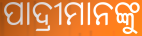
ପାଦ୍ରୀମାନଙ୍କୁ